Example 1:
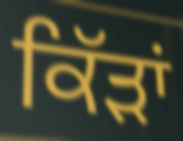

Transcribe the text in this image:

ਕਿੱੜਾਂ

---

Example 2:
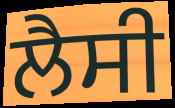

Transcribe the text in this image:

ਲੈਸੀ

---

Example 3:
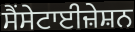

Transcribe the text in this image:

ਸੈਂਸੇਟਾਈਜ਼ੇਸ਼ਨ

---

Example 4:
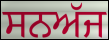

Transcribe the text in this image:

ਸਨਅੱਜ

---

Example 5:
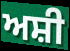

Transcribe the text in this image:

ਅਸ਼ੀ